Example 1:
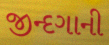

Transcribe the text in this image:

જીન્દગાની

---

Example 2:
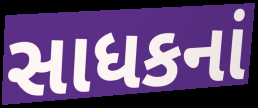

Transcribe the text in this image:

સાધકનાં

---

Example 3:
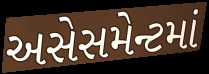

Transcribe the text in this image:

અસેસમેન્ટમાં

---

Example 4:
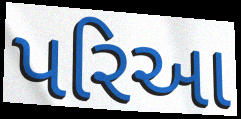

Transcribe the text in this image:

પરિઆ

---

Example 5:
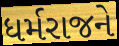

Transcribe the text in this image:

ધર્મરાજને